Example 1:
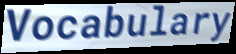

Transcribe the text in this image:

Vocabulary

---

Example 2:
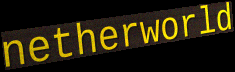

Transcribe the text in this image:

netherworld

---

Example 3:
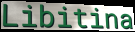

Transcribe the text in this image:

Libitina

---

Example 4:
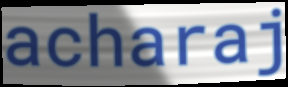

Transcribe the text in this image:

acharaj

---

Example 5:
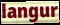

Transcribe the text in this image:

langur